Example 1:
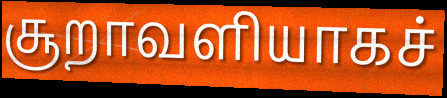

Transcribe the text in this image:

சூறாவளியாகச்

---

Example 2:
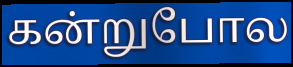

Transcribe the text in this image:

கன்றுபோல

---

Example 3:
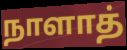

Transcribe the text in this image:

நாளாத்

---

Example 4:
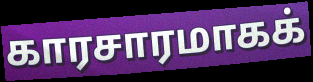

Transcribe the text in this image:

காரசாரமாகக்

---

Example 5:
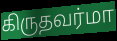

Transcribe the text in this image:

கிருதவர்மா